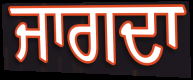
ਜਾਗਦਾ